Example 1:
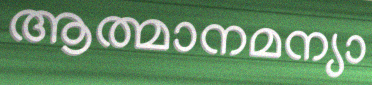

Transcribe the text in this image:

ആത്മാനമന്യാ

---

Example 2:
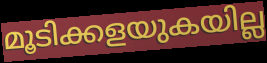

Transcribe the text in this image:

മൂടിക്കളയുകയില്ല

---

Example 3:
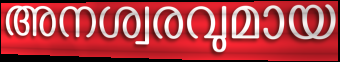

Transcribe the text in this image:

അനശ്വരവുമായ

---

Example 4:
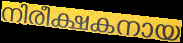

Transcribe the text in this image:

നിരീക്ഷകനായ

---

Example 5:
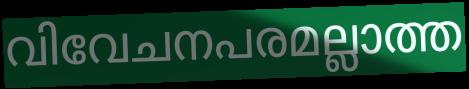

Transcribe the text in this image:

വിവേചനപരമല്ലാത്ത